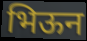
भिऊन